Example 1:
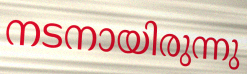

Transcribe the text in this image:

നടനായിരുന്നു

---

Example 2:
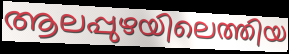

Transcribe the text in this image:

ആലപ്പുഴയിലെത്തിയ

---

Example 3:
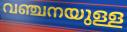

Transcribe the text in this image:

വഞ്ചനയുള്ള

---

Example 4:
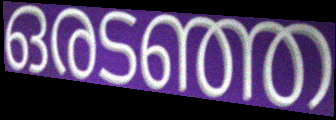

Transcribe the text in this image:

ഒരടഞ്ഞ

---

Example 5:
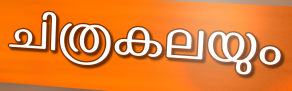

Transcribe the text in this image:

ചിത്രകലയും